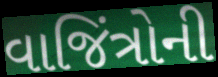
વાજિંત્રોની